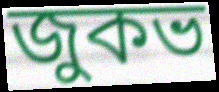
জুকভ